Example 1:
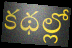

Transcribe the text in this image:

కథల్లో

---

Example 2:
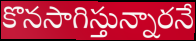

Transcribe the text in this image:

కొనసాగిస్తున్నారనే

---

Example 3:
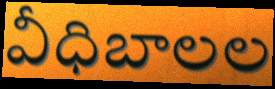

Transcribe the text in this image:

వీధిబాలల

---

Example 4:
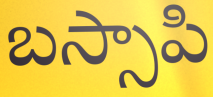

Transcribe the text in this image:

బస్సాపి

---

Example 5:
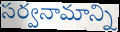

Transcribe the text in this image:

సర్వనామాన్ని